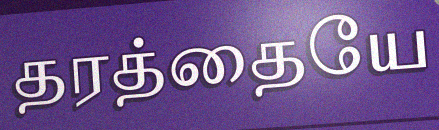
தரத்தையே